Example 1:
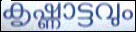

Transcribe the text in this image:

കൃഷ്ണാട്ടവും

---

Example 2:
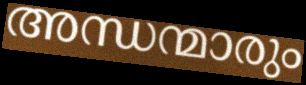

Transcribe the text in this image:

അന്ധന്മാരും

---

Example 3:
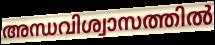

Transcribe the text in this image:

അന്ധവിശ്വാസത്തിൽ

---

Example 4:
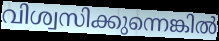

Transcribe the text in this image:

വിശ്വസിക്കുന്നെങ്കിൽ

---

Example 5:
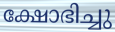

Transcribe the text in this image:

ക്ഷോഭിച്ചു